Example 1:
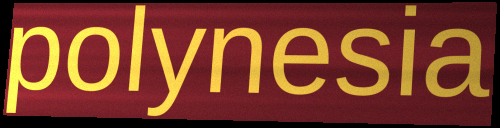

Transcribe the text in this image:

polynesia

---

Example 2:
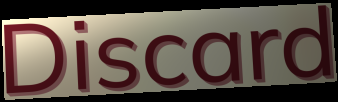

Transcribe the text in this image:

Discard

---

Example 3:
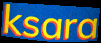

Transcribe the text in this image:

ksara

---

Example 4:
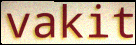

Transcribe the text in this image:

vakit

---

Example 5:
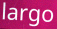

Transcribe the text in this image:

largo